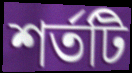
শর্তটি